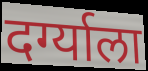
दर्ग्याला